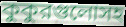
কুকুরগুলোসহ